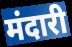
मंदारी